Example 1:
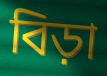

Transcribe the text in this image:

বিড়া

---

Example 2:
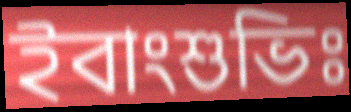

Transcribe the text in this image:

ইবাংশুভিঃ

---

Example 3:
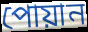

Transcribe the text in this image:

পোয়ান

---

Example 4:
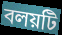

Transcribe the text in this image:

বলয়টি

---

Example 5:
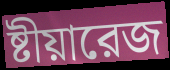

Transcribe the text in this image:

ষ্টীয়ারেজ